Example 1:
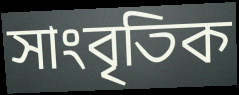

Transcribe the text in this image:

সাংবৃতিক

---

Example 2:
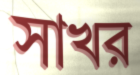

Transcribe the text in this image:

সাখর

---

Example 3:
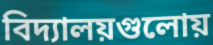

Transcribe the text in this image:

বিদ্যালয়গুলোয়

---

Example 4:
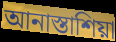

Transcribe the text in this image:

আনাস্তাশিয়া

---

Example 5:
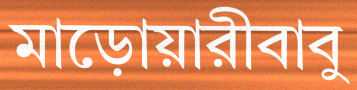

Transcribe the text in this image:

মাড়োয়ারীবাবু